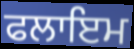
ਫਲਾਇਮ